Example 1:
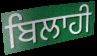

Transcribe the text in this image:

ਬਿਲਾਹੀ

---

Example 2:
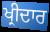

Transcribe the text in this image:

ਖ੍ਰੀਦਾਰ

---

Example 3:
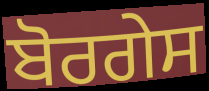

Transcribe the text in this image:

ਬੋਰਗੇਸ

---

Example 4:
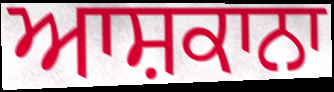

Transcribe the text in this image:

ਆਸ਼ਕਾਨਾ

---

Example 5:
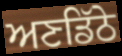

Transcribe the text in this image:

ਅਣਡਿੱਠੇ